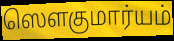
ஸௌகுமார்யம்